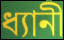
ধ্যানী